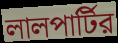
লালপার্টির